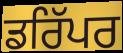
ਡਰਿੱਪਰ